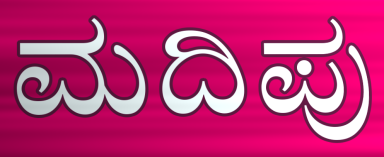
ಮದಿಪು